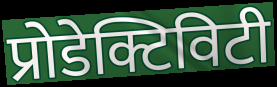
प्रोडेक्टिविटी